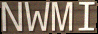
NWMI